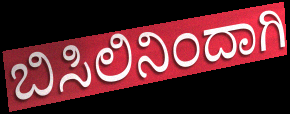
ಬಿಸಿಲಿನಿಂದಾಗಿ